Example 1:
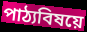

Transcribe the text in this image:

পাঠ্যবিষয়ে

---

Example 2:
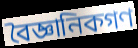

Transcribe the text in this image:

বৈজ্ঞানিকগণ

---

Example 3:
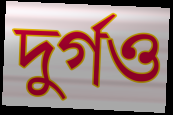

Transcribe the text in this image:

দুর্গও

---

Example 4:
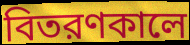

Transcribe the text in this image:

বিতরণকালে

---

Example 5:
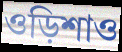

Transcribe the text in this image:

ওড়িশাও